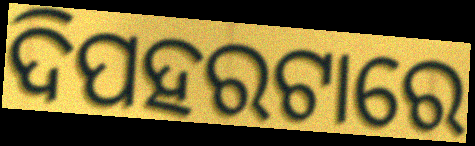
ଦିପହରଟାରେ